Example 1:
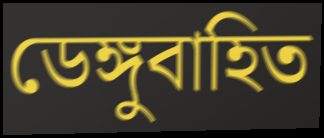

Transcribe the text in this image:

ডেঙ্গুবাহিত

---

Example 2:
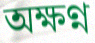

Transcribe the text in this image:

অক্ষণ্ন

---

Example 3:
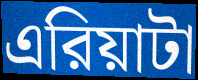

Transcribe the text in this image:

এরিয়াটা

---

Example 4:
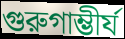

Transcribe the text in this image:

গুরুগাম্ভীর্য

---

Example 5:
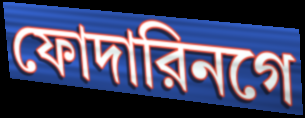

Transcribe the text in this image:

ফোদারিনগে